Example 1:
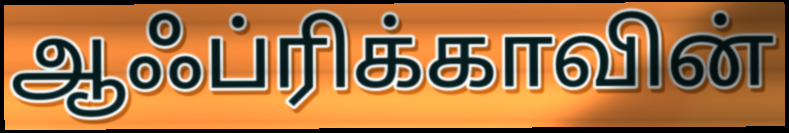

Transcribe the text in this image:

ஆஃப்ரிக்காவின்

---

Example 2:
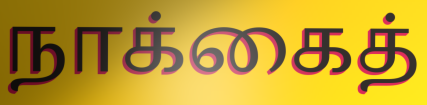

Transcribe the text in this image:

நாக்கைத்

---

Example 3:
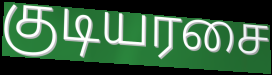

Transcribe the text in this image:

குடியரசை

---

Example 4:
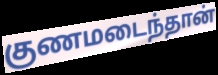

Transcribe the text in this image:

குணமடைந்தான்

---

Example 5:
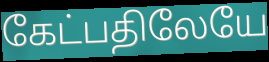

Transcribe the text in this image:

கேட்பதிலேயே